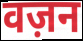
वज़न